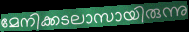
മേനിക്കടലാസായിരുന്നു